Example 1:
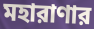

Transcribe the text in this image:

মহারাণার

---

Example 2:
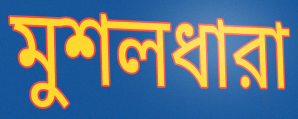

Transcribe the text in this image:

মুশলধারা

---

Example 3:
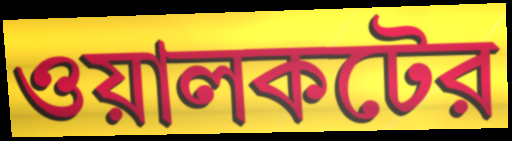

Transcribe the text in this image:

ওয়ালকটের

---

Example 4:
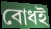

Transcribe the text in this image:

বোধই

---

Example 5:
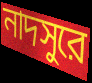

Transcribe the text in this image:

নাদসুরে